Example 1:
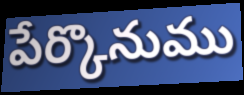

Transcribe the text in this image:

పేర్కొనుము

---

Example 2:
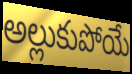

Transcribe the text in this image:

అల్లుకుపోయే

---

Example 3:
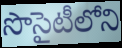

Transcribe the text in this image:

సొసైటీలోని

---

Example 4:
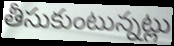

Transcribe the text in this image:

తీసుకుంటున్నట్లు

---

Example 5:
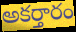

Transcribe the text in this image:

అకర్తారం